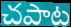
చపాట